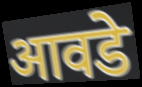
आवडे